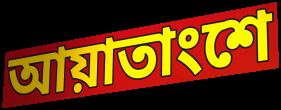
আয়াতাংশে